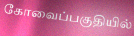
கோவைப்பகுதியில்